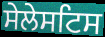
ਸੇਲੇਸਟਿਸ